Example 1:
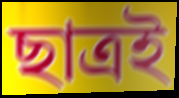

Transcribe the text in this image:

ছাত্রই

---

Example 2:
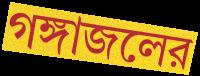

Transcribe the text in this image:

গঙ্গাজলের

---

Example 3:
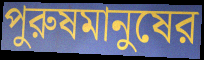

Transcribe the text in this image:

পুরুষমানুষের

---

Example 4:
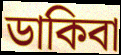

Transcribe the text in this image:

ডাকিবা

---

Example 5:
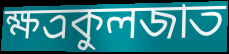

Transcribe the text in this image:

ক্ষত্রকুলজাত